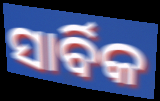
ସାର୍ବିକ